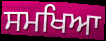
ਸਮਖਿਆ